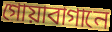
গোয়াবাগানে